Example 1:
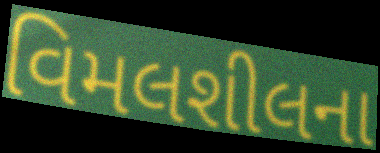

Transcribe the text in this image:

વિમલશીલના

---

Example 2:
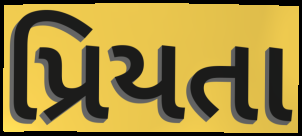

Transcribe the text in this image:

પ્રિયતા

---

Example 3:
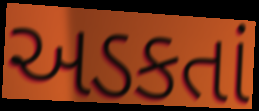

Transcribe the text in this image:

અડકતાં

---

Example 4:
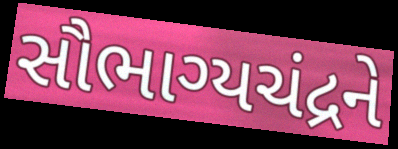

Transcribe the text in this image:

સૌભાગ્યચંદ્રને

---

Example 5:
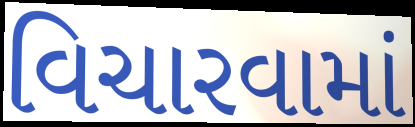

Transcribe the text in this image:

વિચારવામાં